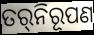
ତର୍‌ନିରୂପଣ